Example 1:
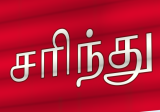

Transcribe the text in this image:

சரிந்து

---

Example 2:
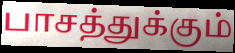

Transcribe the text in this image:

பாசத்துக்கும்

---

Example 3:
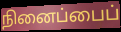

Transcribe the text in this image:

நினைப்பைப்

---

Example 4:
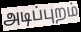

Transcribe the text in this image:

அடிப்புறம்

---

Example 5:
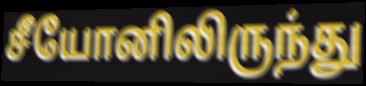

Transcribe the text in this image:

சீயோனிலிருந்து